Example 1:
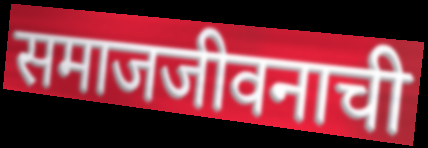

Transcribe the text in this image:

समाजजीवनाची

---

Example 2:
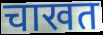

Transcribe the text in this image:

चाखत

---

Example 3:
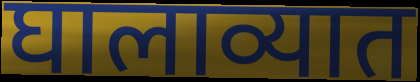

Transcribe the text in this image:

घालाव्यात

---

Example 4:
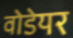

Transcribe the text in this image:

वोडेयर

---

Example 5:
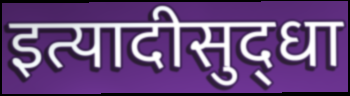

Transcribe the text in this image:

इत्यादीसुद्धा